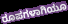
ರೂಪಗಳಾಗಿಯೂ